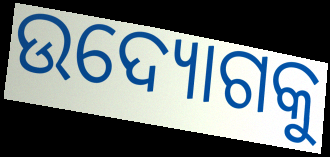
ଉଦ୍ୟୋଗକୁ